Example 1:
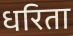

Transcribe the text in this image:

धरिता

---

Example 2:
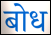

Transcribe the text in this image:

बोध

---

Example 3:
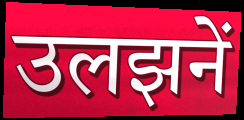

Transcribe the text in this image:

उलझनें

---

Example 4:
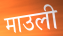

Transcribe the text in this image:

माउली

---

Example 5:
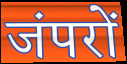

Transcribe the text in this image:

जंपरों